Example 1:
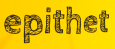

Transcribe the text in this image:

epithet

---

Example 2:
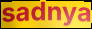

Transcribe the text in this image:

sadnya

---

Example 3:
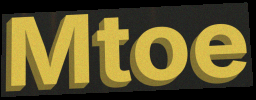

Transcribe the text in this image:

Mtoe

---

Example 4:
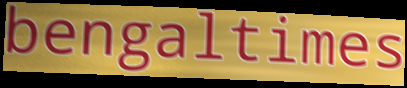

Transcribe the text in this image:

bengaltimes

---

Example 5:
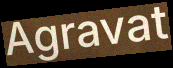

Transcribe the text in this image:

Agravat